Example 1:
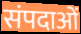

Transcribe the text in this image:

संपदाओं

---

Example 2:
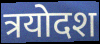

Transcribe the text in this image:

त्रयोदश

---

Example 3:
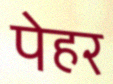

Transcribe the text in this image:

पेहर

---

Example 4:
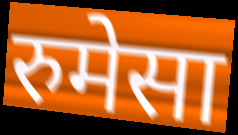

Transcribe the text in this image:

रुमेसा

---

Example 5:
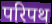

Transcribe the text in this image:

परिपथ